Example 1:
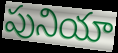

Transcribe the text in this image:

పునియా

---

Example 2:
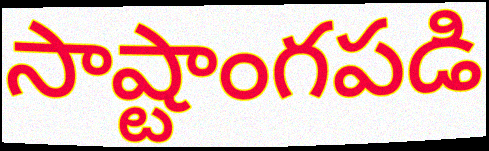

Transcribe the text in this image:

సాష్టాంగపడి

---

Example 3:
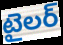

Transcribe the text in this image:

టైలర్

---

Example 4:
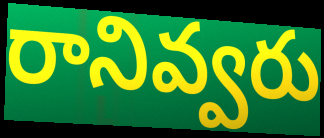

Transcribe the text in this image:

రానివ్వరు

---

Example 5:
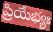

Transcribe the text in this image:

ప్రియేభ్యః